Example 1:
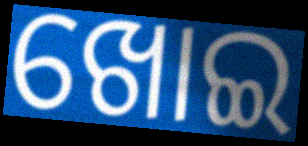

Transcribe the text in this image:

ଖୋଇ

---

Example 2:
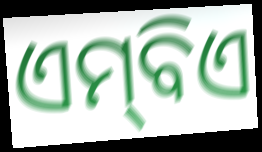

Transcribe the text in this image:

ଏମ୍‌ବିଏ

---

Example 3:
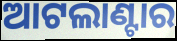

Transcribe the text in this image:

ଆଟଲାଣ୍ଟାର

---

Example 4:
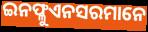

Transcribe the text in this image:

ଇନଫ୍ଳୁଏନସରମାନେ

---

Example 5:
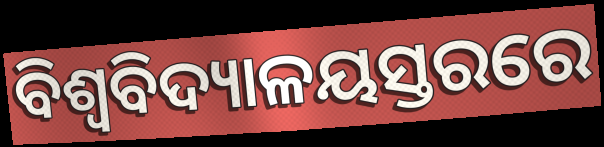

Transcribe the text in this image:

ବିଶ୍ୱବିଦ୍ୟାଳୟସ୍ତରରେ